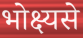
भोक्ष्यसे